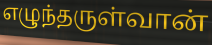
எழுந்தருள்வான்